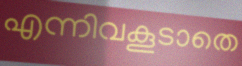
എന്നിവകൂടാതെ